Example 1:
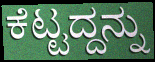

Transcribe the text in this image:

ಕೆಟ್ಟದ್ದನ್ನು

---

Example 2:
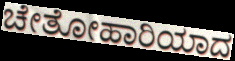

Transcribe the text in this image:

ಚೇತೋಹಾರಿಯಾದ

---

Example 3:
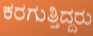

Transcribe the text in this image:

ಕರಗುತ್ತಿದ್ದರು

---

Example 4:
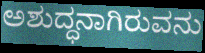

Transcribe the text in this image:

ಅಶುದ್ಧನಾಗಿರುವನು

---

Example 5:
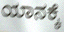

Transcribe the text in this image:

ಯಾನಕ್ಕೆ